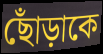
ছোঁড়াকে